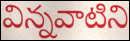
విన్నవాటిని